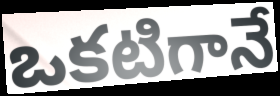
ఒకటిగానే